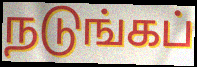
நடுங்கப்